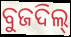
ବୁଜଦିଲ୍